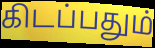
கிடப்பதும்